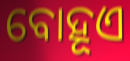
ବୋହୂଏ